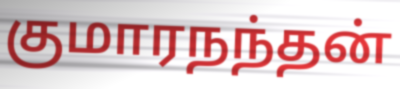
குமாரநந்தன்